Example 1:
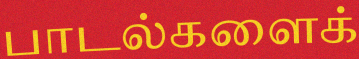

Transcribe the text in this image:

பாடல்களைக்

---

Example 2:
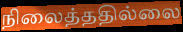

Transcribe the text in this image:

நிலைத்ததில்லை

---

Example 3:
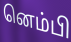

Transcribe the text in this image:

னெம்பி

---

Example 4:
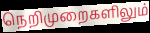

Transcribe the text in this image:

நெறிமுறைகளிலும்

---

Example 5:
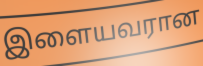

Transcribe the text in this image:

இளையவரான